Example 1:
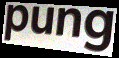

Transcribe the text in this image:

pung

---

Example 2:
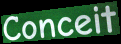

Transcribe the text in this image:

Conceit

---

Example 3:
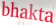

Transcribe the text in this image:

bhakta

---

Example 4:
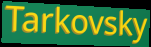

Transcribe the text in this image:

Tarkovsky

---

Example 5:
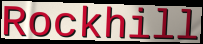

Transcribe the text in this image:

Rockhill